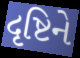
દૃષ્ટિને